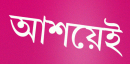
আশয়েই